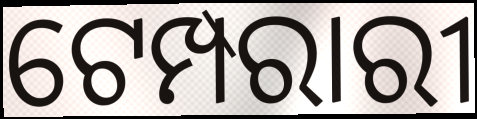
ଟେମ୍ପରାରୀ